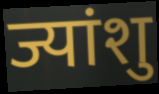
ज्यांशु